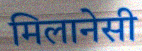
मिलानेसी